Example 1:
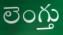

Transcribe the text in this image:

లెంగ్తు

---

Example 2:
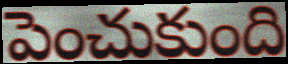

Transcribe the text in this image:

పెంచుకుంది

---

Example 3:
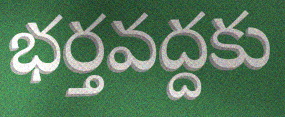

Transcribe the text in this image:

భర్తవద్దకు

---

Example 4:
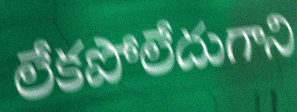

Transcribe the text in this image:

లేకపోలేదుగాని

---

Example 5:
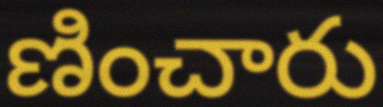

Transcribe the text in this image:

ణించారు